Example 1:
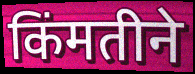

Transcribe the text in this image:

किंमतीने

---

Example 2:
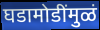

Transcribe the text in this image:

घडामोडींमुळं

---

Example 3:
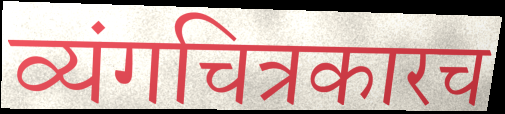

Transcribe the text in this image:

व्यंगचित्रकारच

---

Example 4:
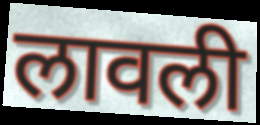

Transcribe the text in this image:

लावली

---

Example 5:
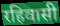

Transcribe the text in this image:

रहिवासी